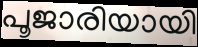
പൂജാരിയായി